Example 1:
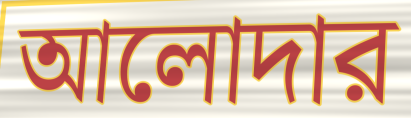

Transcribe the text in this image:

আলোদার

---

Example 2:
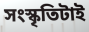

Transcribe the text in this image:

সংস্কৃতিটাই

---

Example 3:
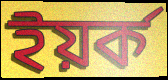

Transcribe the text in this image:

ইয়র্ক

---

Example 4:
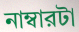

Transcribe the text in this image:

নাম্বারটা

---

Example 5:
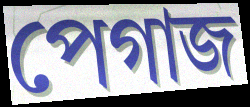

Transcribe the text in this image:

পেগাজ